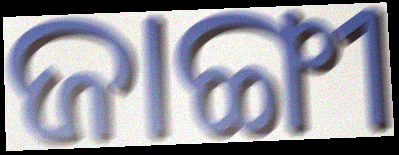
ଜାଙ୍ଗୀ